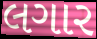
લગાર